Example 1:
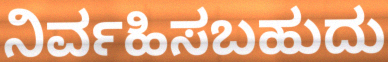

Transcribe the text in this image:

ನಿರ್ವಹಿಸಬಹುದು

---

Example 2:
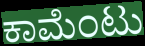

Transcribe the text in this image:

ಕಾಮೆಂಟು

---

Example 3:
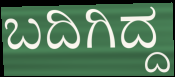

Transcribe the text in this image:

ಬದಿಗಿದ್ದ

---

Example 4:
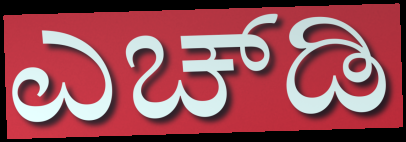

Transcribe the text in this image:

ಎಚ್‍ಡಿ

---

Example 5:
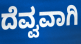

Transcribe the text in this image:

ದೆವ್ವವಾಗಿ